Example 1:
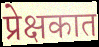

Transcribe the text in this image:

प्रेक्षकात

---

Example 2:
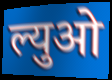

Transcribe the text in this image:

ल्युओ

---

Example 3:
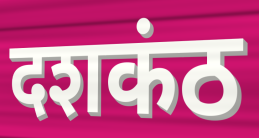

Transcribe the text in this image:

दशकंठ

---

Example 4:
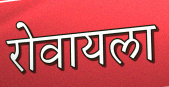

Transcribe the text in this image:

रोवायला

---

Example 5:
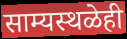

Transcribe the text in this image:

साम्यस्थळेही